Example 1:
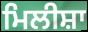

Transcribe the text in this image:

ਮਿਲੀਸ਼ਾ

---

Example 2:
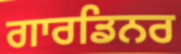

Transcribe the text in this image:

ਗਾਰਡਿਨਰ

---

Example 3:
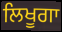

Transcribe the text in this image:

ਲਿਖੂਗਾ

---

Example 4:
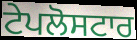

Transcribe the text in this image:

ਟੇਪਲੋਸਟਾਰ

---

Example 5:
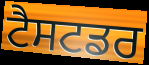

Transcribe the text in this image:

ਟੈਸਟਡਰ